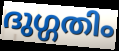
ദുഗ്ഗതിം